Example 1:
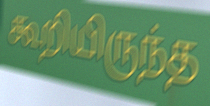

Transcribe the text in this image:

கூறியிருந்த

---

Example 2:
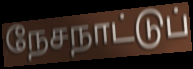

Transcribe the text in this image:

நேசநாட்டுப்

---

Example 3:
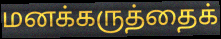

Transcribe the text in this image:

மனக்கருத்தைக்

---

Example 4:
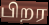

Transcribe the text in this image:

பிறர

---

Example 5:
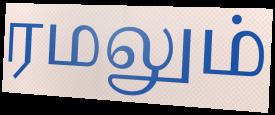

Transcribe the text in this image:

ரமலும்